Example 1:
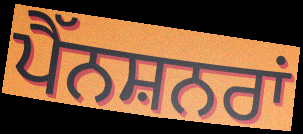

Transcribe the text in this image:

ਪੈੱਨਸ਼ਨਰਾਂ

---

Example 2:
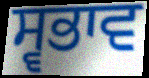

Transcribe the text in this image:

ਸ੍ਵਭਾਵ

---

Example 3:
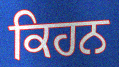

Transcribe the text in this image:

ਕਿਹਨ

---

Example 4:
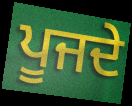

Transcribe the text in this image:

ਪੂਜਦੇ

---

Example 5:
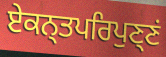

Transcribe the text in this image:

ਏਕਨ੍ਤਪਰਿਪੁਣ੍ਣਂ